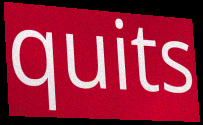
quits